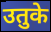
उतुके